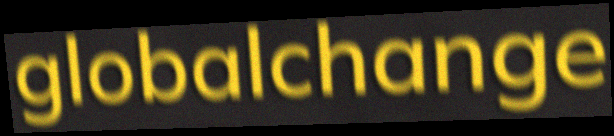
globalchange